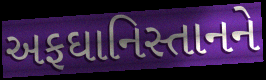
અફઘાનિસ્તાનને